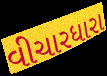
વીચારધારા